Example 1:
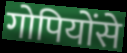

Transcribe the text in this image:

गोपियोंसे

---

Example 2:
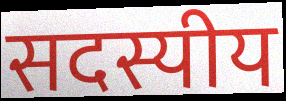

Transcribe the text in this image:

सदस्‍यीय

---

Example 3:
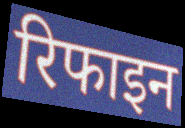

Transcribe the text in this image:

रिफाइन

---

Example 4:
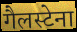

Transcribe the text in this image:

गैलस्टेना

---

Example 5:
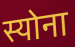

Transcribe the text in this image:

स्योना